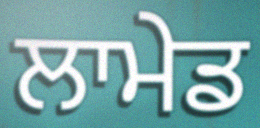
ਲਾਮੇਡ